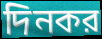
দিনকর